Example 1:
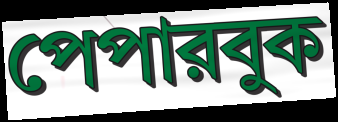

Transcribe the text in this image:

পেপারবুক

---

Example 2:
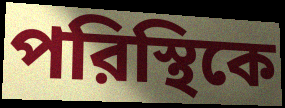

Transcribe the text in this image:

পরিস্থিকে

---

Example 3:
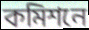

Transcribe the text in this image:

কমিশনে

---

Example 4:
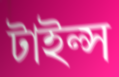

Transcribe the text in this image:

টাইল্স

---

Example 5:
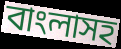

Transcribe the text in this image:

বাংলাসহ